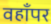
वहाँपर